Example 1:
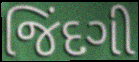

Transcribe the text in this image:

જિંદગી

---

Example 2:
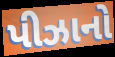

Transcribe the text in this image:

પીઝાનો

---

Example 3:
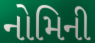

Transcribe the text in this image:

નોમિની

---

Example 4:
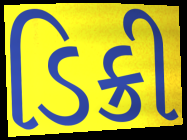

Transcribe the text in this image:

ડિક્રી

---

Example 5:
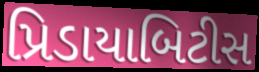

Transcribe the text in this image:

પ્રિડાયાબિટીસ